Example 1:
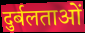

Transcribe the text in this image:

दुर्बलताओं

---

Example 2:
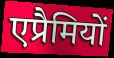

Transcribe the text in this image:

एप्रैमियों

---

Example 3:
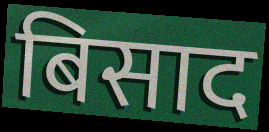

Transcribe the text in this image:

बिसाद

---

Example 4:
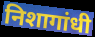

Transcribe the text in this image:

निशागांधी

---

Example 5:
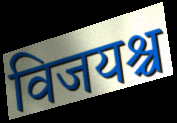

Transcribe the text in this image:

विजयश्च